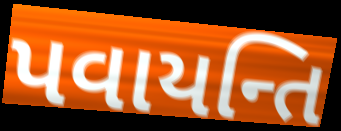
પવાયન્તિ